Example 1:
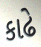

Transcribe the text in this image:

કાઢે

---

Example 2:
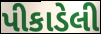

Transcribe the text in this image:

પીકાડેલી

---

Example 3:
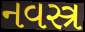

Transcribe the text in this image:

નવસ્ત્ર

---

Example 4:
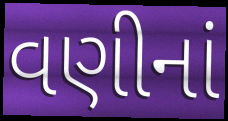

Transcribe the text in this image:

વણીનાં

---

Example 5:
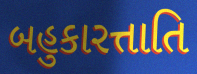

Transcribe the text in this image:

બહુકારત્તાતિ